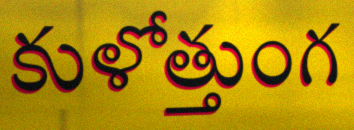
కుళోత్తుంగ